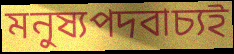
মনুষ্যপদবাচ্যই